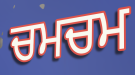
ਚਮਚਮ